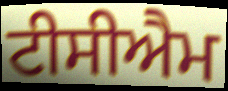
ਟੀਸੀਐਮ